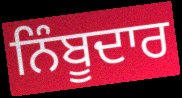
ਨਿੰਬੂਦਾਰ